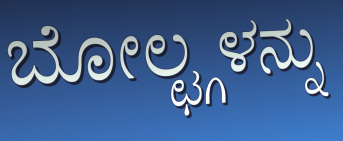
ಬೋಲ್ಟ್ಗಳನ್ನು